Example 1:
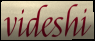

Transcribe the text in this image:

videshi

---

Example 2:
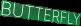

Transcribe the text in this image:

BUTTERFLY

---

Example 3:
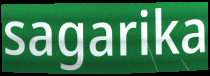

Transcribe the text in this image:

sagarika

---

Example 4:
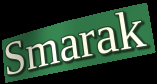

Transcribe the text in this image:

Smarak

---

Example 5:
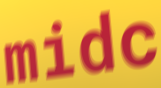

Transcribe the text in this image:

midc